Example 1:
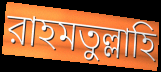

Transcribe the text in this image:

রাহমতুল্লাহি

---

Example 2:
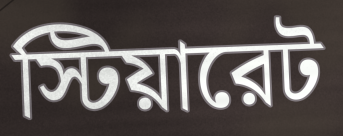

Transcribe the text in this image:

স্টিয়ারেট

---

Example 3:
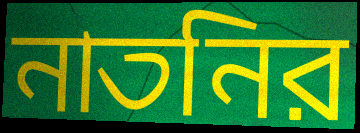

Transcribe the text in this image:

নাতনির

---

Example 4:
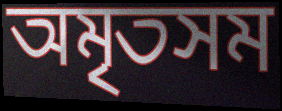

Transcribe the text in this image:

অমৃতসম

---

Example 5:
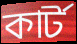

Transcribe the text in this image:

কার্ট